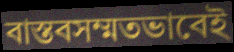
বাস্তবসম্মতভাবেই